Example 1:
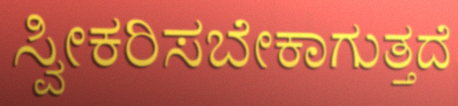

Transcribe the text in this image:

ಸ್ವೀಕರಿಸಬೇಕಾಗುತ್ತದೆ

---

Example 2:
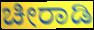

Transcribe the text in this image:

ಚೀರಾಡಿ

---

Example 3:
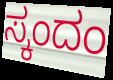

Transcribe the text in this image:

ಸ್ಕಂದಂ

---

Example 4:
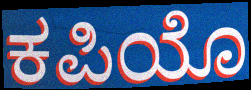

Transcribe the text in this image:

ಕಪಿಯೊ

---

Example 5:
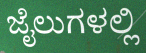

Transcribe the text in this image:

ಜೈಲುಗಳಲ್ಲಿ